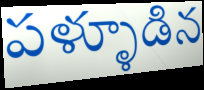
పళ్ళూడిన